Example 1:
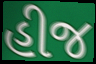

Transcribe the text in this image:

હીજ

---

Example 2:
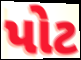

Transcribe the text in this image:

પોટ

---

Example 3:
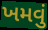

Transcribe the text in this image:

ખમવું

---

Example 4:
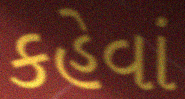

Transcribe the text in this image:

કહેવાં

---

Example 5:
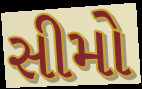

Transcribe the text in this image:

સીમો